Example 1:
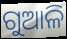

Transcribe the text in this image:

ଗୁଆଳି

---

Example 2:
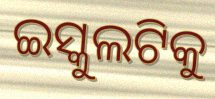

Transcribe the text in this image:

ଇସ୍କୁଲଟିକୁ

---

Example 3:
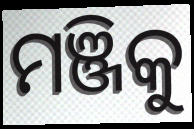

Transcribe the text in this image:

ମଞ୍ଜିକୁ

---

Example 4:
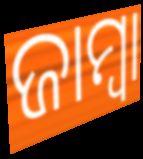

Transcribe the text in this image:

ଜାମ୍ବା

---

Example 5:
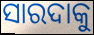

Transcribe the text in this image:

ସାରଦାକୁ